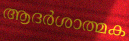
ആദർശാത്മക